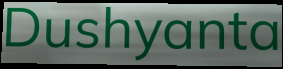
Dushyanta